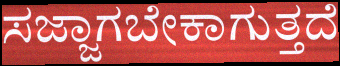
ಸಜ್ಜಾಗಬೇಕಾಗುತ್ತದೆ